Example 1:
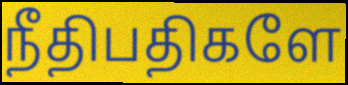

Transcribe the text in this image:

நீதிபதிகளே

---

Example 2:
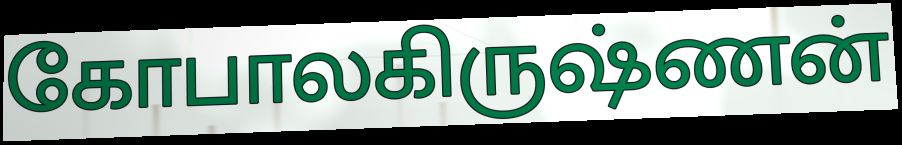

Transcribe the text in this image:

கோபாலகிருஷ்ணன்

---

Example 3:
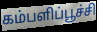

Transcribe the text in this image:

கம்பளிப்பூச்சி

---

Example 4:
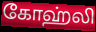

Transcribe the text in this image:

கோஹ்லி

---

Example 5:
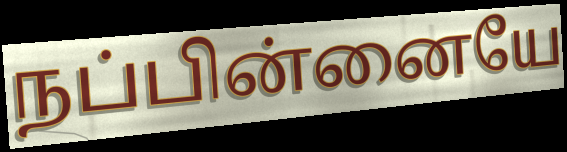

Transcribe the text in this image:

நப்பின்னையே